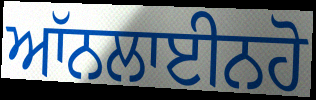
ਆੱਨਲਾਈਨਹੋ